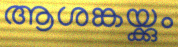
ആശങ്കയ്ക്കും